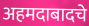
अहमदाबादचे